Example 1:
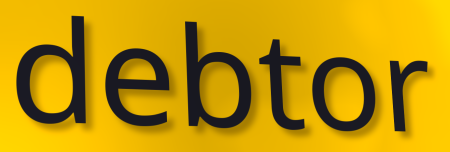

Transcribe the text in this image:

debtor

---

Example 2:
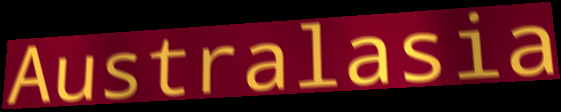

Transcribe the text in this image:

Australasia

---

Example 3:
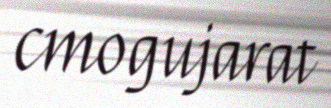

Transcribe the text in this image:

cmogujarat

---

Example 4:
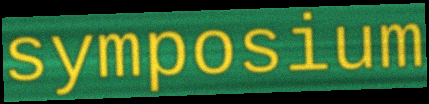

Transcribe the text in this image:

symposium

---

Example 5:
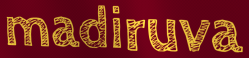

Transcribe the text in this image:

madiruva